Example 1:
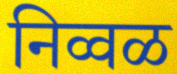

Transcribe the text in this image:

निव्वळ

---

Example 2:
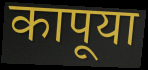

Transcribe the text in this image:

कापूया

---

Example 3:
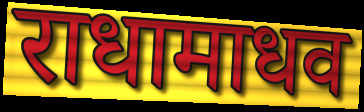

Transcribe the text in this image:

राधामाधव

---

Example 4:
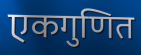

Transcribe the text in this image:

एकगुणित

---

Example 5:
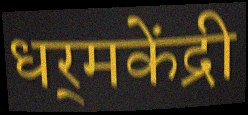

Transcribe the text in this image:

धर्मकेंद्री